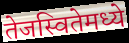
तेजस्वितेमध्ये